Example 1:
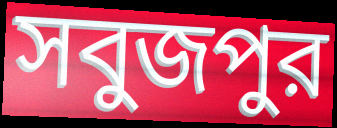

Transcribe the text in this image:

সবুজপুর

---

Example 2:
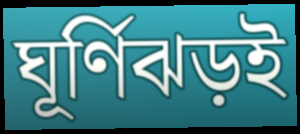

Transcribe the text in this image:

ঘূর্ণিঝড়ই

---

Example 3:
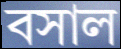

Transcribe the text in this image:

বসাল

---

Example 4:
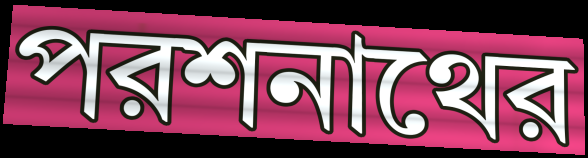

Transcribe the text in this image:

পরশনাথের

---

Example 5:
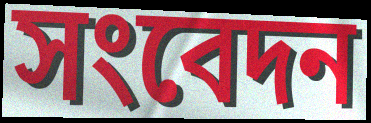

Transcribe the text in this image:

সংবেদন